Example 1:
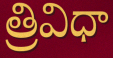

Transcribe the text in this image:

త్రివిధా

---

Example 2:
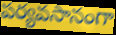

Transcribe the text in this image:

పర్యవసానంగా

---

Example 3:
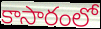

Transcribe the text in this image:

కాసారంలో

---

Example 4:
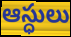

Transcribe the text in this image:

ఆస్ధులు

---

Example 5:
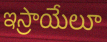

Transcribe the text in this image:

ఇస్రాయేలూ